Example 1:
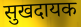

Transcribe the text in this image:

सुखदायक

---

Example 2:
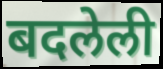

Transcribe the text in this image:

बदलेली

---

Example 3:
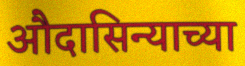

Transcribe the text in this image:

औदासिन्याच्या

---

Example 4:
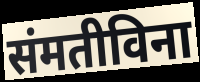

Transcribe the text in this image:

संमतीविना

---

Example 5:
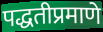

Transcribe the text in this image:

पद्धतीप्रमाणे